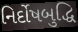
નિર્દોષબુદ્ધિ